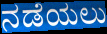
ನಡೆಯಲು